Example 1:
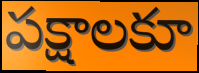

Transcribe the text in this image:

పక్షాలకూ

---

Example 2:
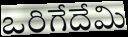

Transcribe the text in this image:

ఒరిగేదేమి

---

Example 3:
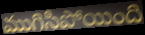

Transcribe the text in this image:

ముగిసిపోయింది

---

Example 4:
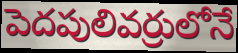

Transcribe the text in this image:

పెదపులివర్రులోనే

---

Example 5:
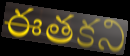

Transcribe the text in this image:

ఈతకని